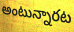
అంటున్నారట